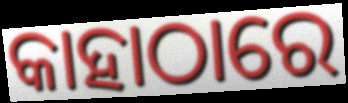
କାହାଠାରେ